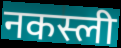
नकस्ली